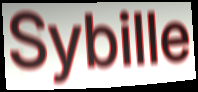
Sybille